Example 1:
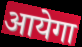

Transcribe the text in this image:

आयेगा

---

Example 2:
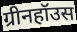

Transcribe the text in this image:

ग्रीनहॉउस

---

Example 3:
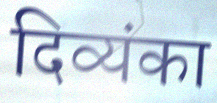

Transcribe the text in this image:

दिव्यंका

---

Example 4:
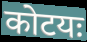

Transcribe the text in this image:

कोटयः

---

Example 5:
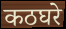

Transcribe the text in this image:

कठघरे